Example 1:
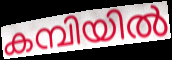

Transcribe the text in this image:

കമ്പിയിൽ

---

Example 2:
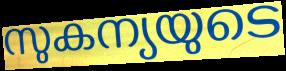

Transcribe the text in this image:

സുകന്യയുടെ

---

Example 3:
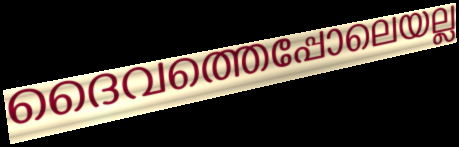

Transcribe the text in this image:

ദൈവത്തെപ്പോലെയല്ല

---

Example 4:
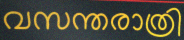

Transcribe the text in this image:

വസന്തരാത്രി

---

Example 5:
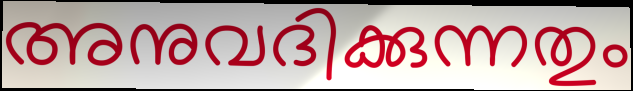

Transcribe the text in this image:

അനുവദിക്കുന്നതും